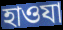
হাওযা